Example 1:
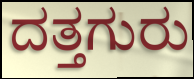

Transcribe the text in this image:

ದತ್ತಗುರು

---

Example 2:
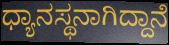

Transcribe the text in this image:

ಧ್ಯಾನಸ್ಥನಾಗಿದ್ದಾನೆ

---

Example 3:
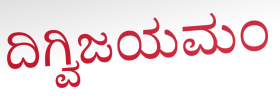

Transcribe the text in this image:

ದಿಗ್ವಿಜಯಮಂ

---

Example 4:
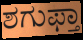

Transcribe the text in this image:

ಶಗುಫ್ತಾ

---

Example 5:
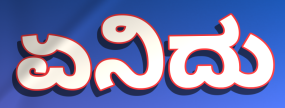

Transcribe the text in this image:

ಏನಿದು